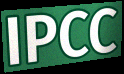
IPCC